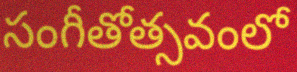
సంగీతోత్సవంలో